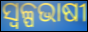
ସ୍ୱଳ୍ପଭାଷୀ